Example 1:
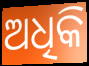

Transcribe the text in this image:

ଅଧିକି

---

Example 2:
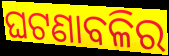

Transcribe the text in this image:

ଘଟଣାବଳିର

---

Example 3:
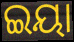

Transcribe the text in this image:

ଇୟା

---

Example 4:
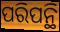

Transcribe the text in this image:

ପରିପନ୍ଥି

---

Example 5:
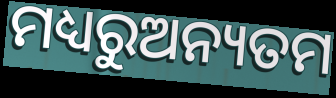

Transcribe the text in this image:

ମଧ୍ୟରୁଅନ୍ୟତମ